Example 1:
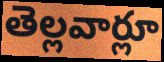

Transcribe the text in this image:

తెల్లవార్లూ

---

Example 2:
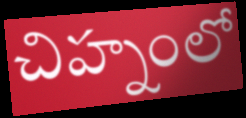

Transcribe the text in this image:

చిహ్నంలో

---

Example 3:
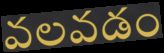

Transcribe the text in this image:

వలవడం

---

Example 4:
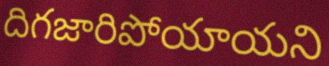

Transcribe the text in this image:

దిగజారిపోయాయని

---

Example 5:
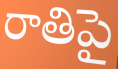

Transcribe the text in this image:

రాతిపై